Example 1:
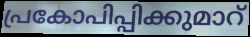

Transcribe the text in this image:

പ്രകോപിപ്പിക്കുമാറ്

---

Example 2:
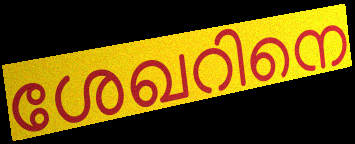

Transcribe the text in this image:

ശേഖറിനെ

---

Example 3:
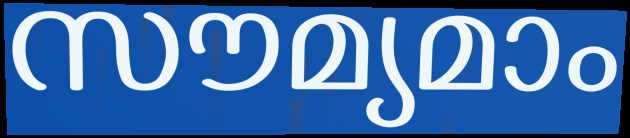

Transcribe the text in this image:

സൗമ്യമാം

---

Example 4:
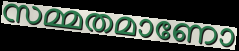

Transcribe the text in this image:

സമ്മതമാണോ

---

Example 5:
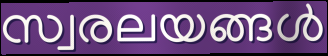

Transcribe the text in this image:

സ്വരലയങ്ങൾ